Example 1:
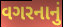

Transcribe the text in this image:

વગરનાનું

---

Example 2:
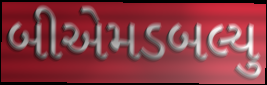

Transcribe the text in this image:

બીએમડબલ્યુ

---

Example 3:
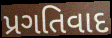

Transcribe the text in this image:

પ્રગતિવાદ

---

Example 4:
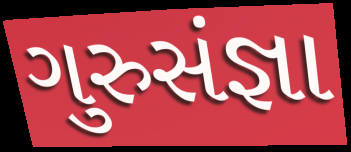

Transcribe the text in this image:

ગુરુસંજ્ઞા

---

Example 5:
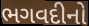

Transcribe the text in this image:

ભગવદીનો